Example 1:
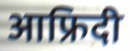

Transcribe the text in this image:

आफ्रिदी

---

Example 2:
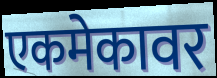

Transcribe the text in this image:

एकमेकावर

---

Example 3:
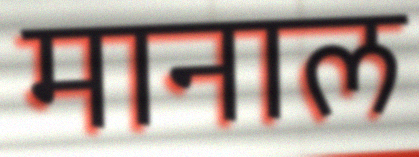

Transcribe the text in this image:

मानाल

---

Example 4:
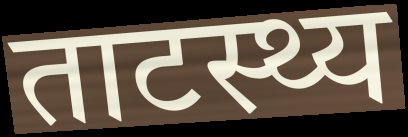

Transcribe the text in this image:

ताटस्थ्य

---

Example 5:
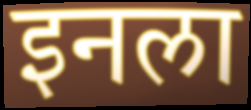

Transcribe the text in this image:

इनला